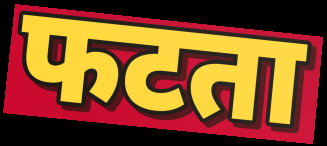
फटता